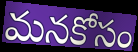
మనకోసం